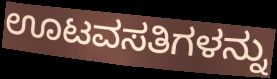
ಊಟವಸತಿಗಳನ್ನು